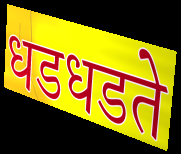
धडधडते